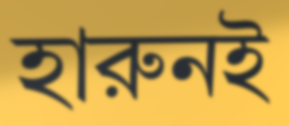
হারুনই